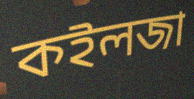
কইলজা